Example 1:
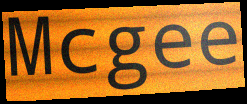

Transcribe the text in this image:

Mcgee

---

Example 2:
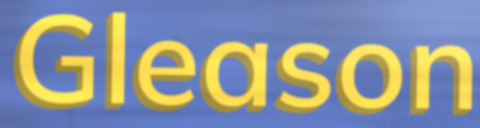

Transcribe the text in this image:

Gleason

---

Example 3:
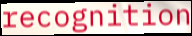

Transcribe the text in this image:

recognition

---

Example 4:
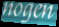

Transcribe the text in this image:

nogen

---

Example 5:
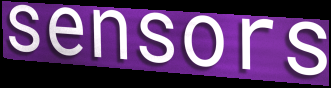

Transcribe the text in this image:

sensors